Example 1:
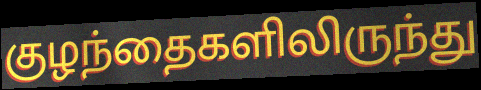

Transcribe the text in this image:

குழந்தைகளிலிருந்து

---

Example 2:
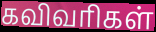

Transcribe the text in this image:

கவிவரிகள்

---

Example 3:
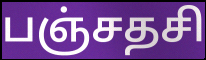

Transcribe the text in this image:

பஞ்சதசி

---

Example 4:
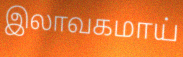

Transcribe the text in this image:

இலாவகமாய்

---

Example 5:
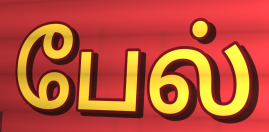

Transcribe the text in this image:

பேல்